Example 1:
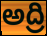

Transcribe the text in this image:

అద్రి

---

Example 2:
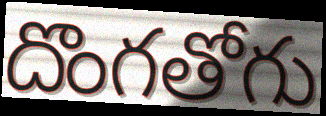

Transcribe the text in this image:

దొంగతోగు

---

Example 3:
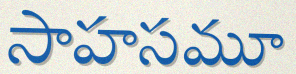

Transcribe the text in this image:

సాహసమూ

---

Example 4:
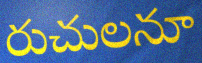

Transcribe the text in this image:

రుచులనూ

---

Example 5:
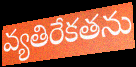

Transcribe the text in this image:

వ్యతిరేకతను